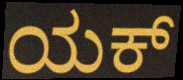
ಯಕ್